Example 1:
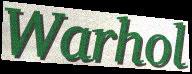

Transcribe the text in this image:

Warhol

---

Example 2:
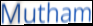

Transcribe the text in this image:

Mutham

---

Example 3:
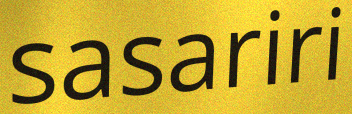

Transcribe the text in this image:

sasariri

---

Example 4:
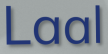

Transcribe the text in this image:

Laal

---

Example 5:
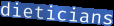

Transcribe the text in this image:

dieticians